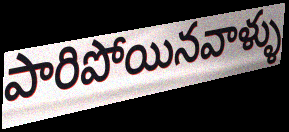
పారిపోయినవాళ్ళు